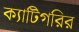
ক্যাটিগরির